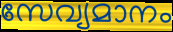
സേവ്യമാനം